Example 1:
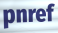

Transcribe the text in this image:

pnref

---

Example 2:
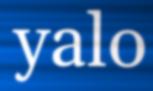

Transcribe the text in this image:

yalo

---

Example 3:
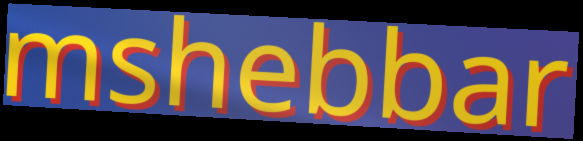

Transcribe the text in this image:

mshebbar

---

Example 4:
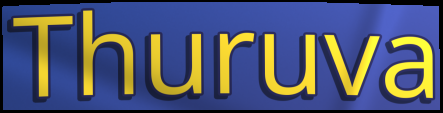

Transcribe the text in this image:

Thuruva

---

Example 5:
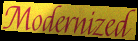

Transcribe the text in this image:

Modernized